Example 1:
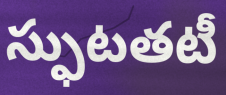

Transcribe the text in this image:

స్ఫుటతటీ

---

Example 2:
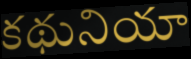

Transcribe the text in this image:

కథునియా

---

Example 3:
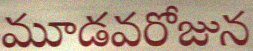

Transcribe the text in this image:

మూడవరోజున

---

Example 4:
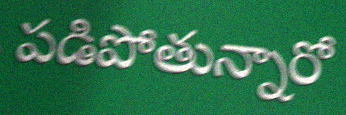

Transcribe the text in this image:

పడిపోతున్నారో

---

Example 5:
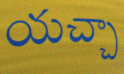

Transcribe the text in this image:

యచ్చా